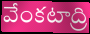
వేంకటాద్రి